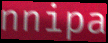
nnipa